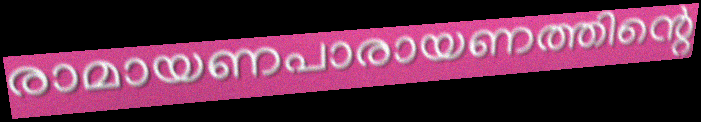
രാമായണപാരായണത്തിന്റെ